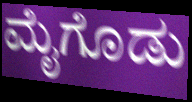
ಮೈಗೊಡು